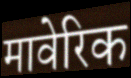
मावेरिक